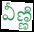
వీణ్ణి